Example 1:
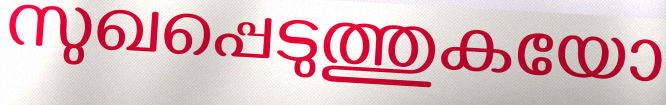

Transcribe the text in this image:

സുഖപ്പെടുത്തുകയോ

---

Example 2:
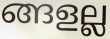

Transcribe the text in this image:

ങ്ങളല്ല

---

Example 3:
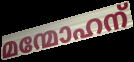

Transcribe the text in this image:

മന്മോഹന്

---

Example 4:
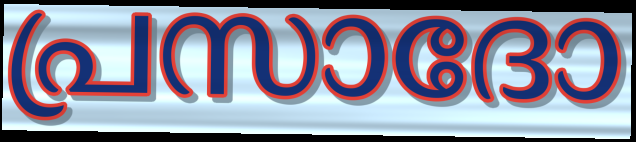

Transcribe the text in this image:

പ്രസാദോ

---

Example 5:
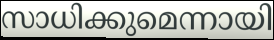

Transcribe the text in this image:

സാധിക്കുമെന്നായി